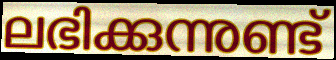
ലഭിക്കുന്നുണ്ട്